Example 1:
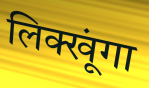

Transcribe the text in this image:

लिक्खूंगा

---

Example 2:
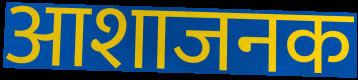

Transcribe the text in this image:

आशाजनक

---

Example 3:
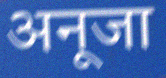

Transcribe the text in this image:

अनूजा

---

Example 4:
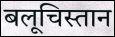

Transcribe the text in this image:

बलूचिस्‍तान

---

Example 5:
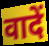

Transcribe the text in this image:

वादें